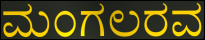
ಮಂಗಲರವ